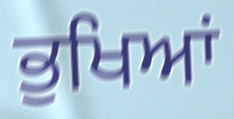
ਭੁਖਿਆਂ